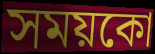
সময়কো